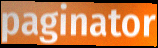
paginator